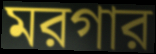
মরগার